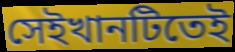
সেইখানটিতেই